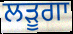
ਲੜੂਗਾ